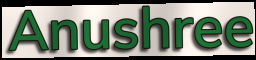
Anushree